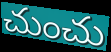
చుంచు